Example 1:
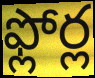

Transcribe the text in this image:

ఫ్లోర్ల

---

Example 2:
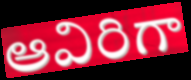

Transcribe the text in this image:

ఆవిరిగా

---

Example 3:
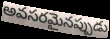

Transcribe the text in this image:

అవసరమైనప్పుడు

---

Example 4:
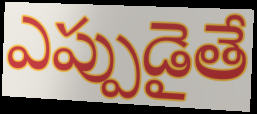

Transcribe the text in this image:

ఎప్పుడైతే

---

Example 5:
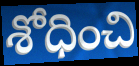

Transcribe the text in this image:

శోధించి